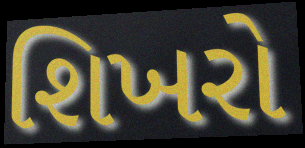
શિખરો